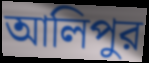
আলিপুর